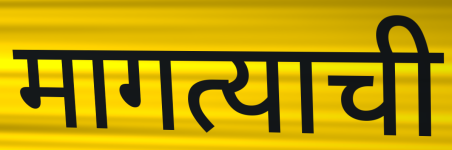
मागत्याची